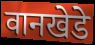
वानखेडे